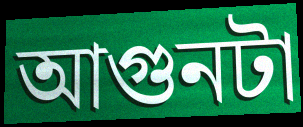
আগুনটা